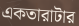
একতারাটার